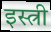
इस्त्री